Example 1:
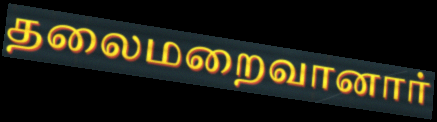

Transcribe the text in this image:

தலைமறைவானார்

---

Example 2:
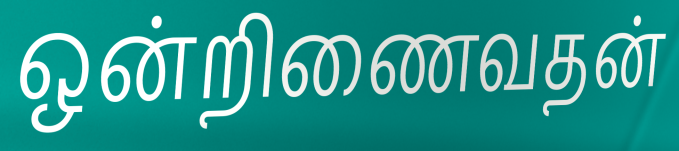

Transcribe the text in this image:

ஒன்றிணைவதன்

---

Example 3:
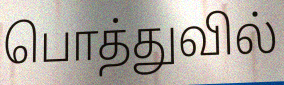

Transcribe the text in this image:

பொத்துவில்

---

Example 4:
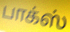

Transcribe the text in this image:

பாக்ஸ்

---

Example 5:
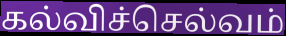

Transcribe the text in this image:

கல்விச்செல்வம்